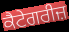
ਕੈਟੇਗਰੀਜ਼